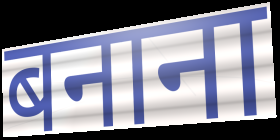
बनाना